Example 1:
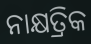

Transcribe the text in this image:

ନାକ୍ଷତ୍ରିକ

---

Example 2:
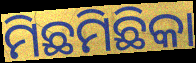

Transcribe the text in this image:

ମିଛମିଛିକା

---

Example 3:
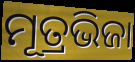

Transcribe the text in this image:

ମୂତ୍ରଭିଜା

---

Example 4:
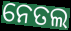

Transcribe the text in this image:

ନେତଲ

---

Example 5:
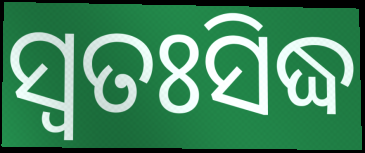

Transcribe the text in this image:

ସ୍ବତଃସିଦ୍ଧ